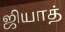
ஜியாத்